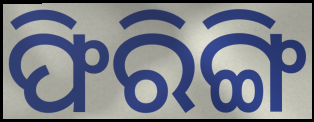
ଫିରିଙ୍ଗି